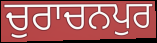
ਚੁਰਾਚਨਪੁਰ